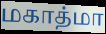
மகாத்மா